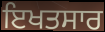
ਇਖਤਸਾਰ